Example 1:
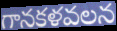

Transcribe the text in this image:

గానకళవలన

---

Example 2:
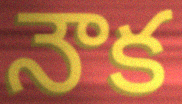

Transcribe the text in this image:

నౌక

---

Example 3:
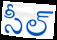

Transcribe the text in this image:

సీల్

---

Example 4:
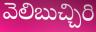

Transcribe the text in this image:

వెలిబుచ్చిరి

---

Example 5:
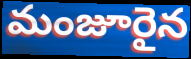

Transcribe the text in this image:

మంజూరైన